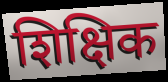
शिक्षिक